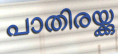
പാതിരയ്ക്കു